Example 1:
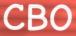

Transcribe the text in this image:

CBO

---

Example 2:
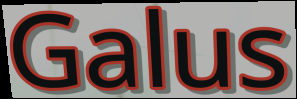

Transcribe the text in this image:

Galus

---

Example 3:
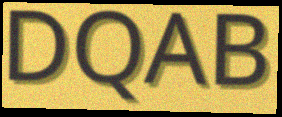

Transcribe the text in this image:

DQAB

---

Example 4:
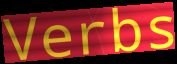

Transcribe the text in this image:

Verbs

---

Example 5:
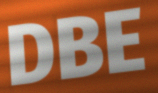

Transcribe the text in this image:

DBE